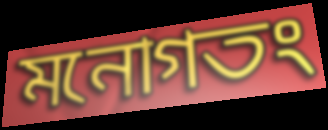
মনোগতং